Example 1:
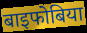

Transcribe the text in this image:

बाइफोबिया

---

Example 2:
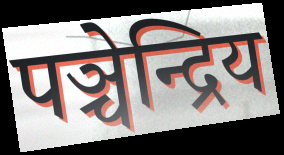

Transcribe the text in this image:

पञ्चेन्द्रिय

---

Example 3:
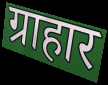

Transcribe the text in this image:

ग्राहार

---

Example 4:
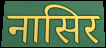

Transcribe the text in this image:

नासिर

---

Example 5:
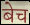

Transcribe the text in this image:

बेच